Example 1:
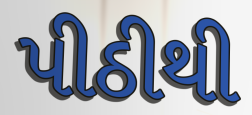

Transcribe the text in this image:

પીઠીથી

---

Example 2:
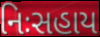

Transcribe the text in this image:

નિઃસહાય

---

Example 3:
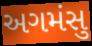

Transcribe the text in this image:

અગમંસુ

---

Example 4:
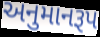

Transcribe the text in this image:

અનુમાનરૂપ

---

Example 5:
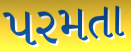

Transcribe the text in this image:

પરમતા